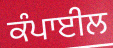
ਕੰਪਾਈਲ